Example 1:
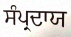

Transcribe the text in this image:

ਸੰਪ੍ਰਦਾਯ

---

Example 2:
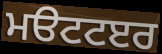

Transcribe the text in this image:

ਮੳਟਟੲਰ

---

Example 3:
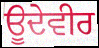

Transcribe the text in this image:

ਊਦੇਵੀਰ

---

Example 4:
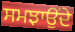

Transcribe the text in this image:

ਸਮਝਾਉੰਦੇ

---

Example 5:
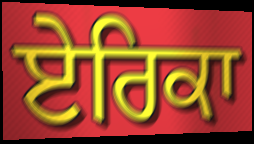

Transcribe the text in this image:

ਏਰਿਕਾ